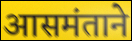
आसमंताने